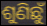
ଶୁଣିଛୁଁ